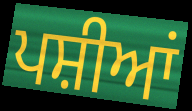
ਪਸ਼ੀਆਂ